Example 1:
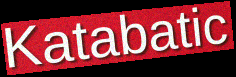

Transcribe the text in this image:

Katabatic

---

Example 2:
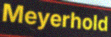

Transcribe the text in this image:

Meyerhold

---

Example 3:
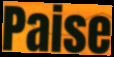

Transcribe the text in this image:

Paise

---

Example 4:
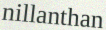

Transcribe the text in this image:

nillanthan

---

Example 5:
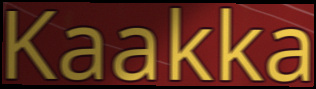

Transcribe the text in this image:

Kaakka